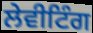
ਲੇਵੀਟਿੰਗ